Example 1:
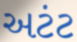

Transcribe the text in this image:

અટંટ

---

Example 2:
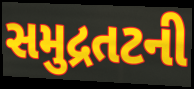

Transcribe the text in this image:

સમુદ્રતટની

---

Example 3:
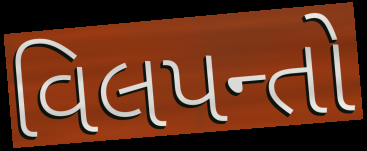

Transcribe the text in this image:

વિલપન્તો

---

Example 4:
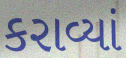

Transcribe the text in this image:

કરાવ્યાં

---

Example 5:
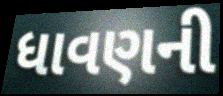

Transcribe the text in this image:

ધાવણની